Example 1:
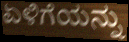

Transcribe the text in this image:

ಏಳಿಗೆಯನ್ನು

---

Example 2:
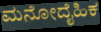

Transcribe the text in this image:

ಮನೋದೈಹಿಕ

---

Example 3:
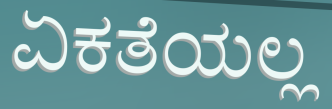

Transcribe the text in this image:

ಏಕತೆಯಲ್ಲ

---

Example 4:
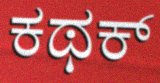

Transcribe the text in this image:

ಕಥಕ್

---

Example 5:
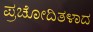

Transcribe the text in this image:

ಪ್ರಚೋದಿತಳಾದ